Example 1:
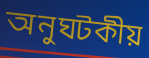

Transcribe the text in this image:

অনুঘটকীয়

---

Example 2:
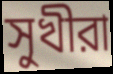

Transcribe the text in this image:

সুখীরা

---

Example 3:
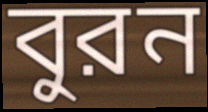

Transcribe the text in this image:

বুরন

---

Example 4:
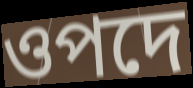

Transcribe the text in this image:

ওপদে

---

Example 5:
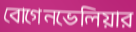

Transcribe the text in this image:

বোগেনভেলিয়ার